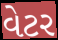
વેટર